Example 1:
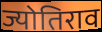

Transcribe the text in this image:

ज्‍योतिराव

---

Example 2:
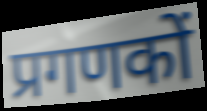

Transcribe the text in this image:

प्रगणकों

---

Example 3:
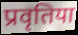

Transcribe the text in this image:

प्रवृतिया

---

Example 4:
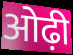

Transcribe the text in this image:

ओढ़ी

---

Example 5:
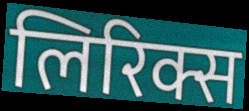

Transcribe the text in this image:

लिरिक्स